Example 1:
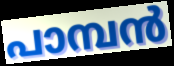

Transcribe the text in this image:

പാമ്പൻ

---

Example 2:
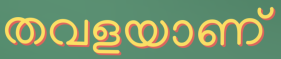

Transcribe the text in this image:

തവളയാണ്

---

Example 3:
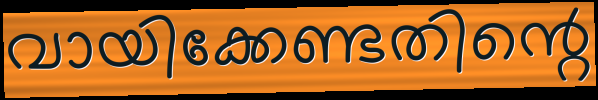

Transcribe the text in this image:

വായിക്കേണ്ടതിന്റെ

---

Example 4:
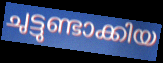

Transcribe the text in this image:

ചുട്ടുണ്ടാക്കിയ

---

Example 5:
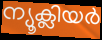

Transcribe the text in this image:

ന്യൂക്ലിയർ